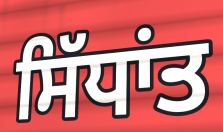
ਸਿੱਧਾਂਤ